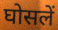
घोसलें